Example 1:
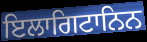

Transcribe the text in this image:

ਇਲਾਗਿਟਾਨਿਨ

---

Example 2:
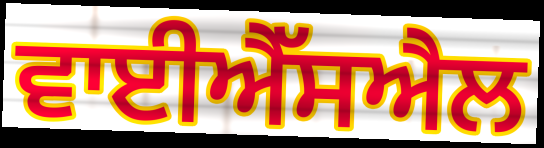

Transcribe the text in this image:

ਵਾਈਐੱਸਐਲ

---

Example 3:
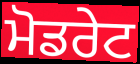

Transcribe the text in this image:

ਮੋਡਰੇਟ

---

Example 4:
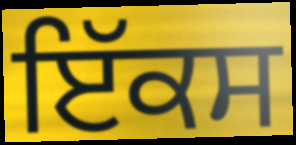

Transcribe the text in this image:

ਇੱਕਸ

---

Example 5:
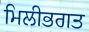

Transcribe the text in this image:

ਮਿਲੀਭਗਤ